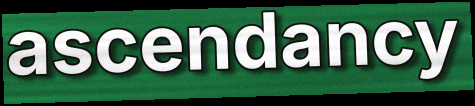
ascendancy